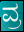
ವ್ರ